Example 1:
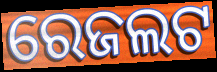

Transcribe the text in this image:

ରେଜଲଟ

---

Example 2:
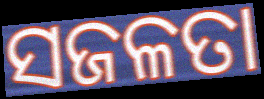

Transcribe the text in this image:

ସଜଳତା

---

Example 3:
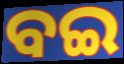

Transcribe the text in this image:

ବଇ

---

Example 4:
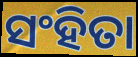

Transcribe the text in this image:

ସଂହିତା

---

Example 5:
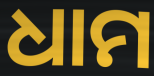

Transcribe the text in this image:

ଧାମ